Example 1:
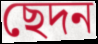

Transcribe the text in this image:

ছেদন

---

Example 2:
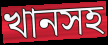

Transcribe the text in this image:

খানসহ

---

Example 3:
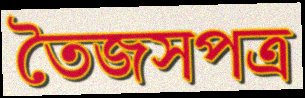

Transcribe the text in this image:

তৈজসপত্র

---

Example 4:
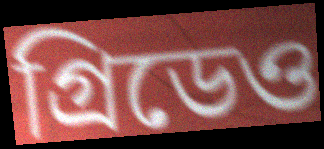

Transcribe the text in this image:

গ্রিডেও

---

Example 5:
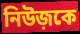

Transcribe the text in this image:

নিউজ়কে